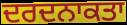
ਦਰਦਨਾਕਤਾ